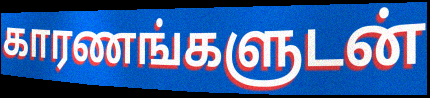
காரணங்களுடன்